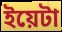
ইয়েটা